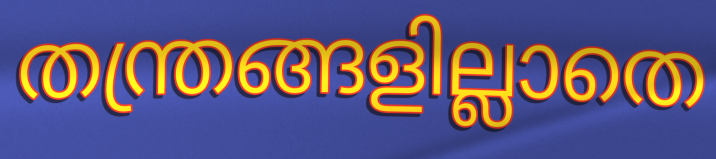
തന്ത്രങ്ങളില്ലാതെ